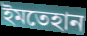
ইমতেহান